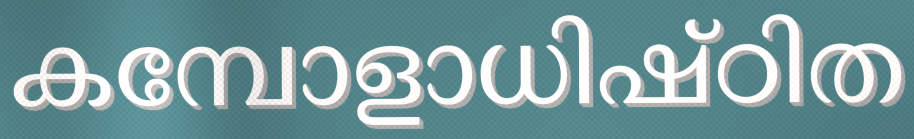
കമ്പോളാധിഷ്ഠിത